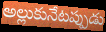
అల్లుకునేటప్పుడు